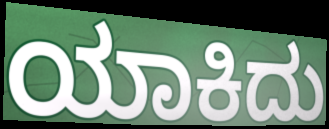
ಯಾಕಿದು